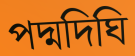
পদ্মদিঘি